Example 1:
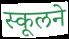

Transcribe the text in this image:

स्कूलने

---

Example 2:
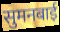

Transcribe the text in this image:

सुमनबाई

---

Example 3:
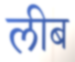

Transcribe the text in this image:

लीब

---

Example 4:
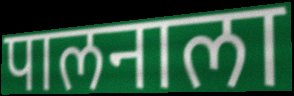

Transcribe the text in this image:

पालनाला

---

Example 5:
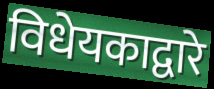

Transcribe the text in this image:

विधेयकाद्वारे